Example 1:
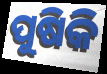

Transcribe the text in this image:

ପୁଷିକି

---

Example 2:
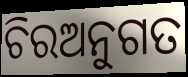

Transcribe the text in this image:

ଚିରଅନୁଗତ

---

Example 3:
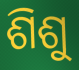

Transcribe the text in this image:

ଶିଶୁ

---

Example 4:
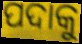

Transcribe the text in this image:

ପଦାକୁ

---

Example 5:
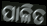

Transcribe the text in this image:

ପାଳିତ